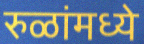
रुळांमध्ये